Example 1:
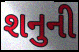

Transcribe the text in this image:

શનુની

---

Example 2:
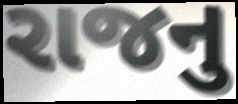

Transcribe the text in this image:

રાજનુ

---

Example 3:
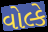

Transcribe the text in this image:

વોલ્કે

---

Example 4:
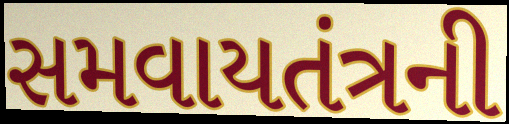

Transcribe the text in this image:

સમવાયતંત્રની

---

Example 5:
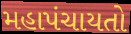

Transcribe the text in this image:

મહાપંચાયતો